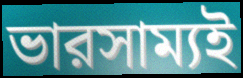
ভারসাম্যই